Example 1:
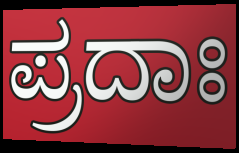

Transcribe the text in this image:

ಪ್ರದಾಃ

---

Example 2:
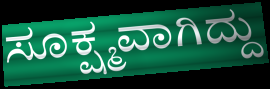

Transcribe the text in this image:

ಸೂಕ್ಷ್ಮವಾಗಿದ್ದು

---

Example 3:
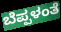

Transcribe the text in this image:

ಬೆಪ್ಪಳಂತೆ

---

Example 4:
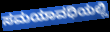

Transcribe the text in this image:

ಸಮಯಾವಧಿಯಲ್ಲಿ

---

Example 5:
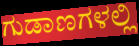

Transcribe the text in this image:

ಗುಡಾಣಗಳಲ್ಲಿ